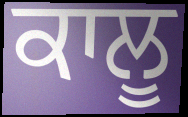
ਕਾਲੂ